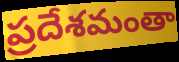
ప్రదేశమంతా